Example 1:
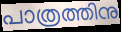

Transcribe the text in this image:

പാത്രത്തിനു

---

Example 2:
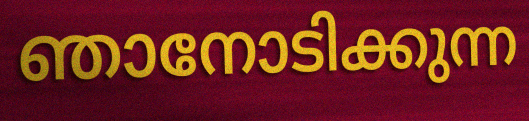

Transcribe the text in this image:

ഞാനോടിക്കുന്ന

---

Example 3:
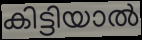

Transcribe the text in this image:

കിട്ടിയാൽ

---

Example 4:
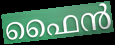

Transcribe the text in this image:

ഫൈൻ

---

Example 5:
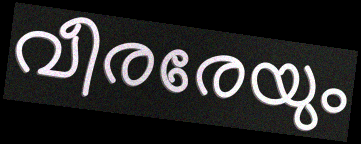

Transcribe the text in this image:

വീരരേയും